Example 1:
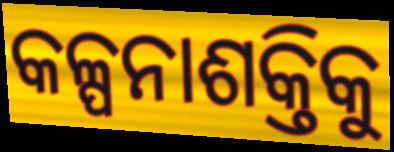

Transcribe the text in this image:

କଳ୍ପନାଶକ୍ତିକୁ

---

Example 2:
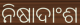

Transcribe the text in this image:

ନିଷାଦାଂଶ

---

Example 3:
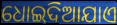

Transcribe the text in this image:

ଧୋଇଦିଆଯାଏ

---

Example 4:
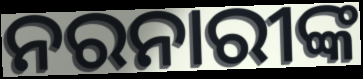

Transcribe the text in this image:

ନରନାରୀଙ୍କ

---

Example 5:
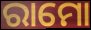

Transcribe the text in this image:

ରାମୋ